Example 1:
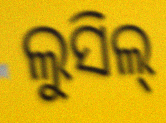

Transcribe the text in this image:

ଲୁସିଲ୍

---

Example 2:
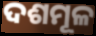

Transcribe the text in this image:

ଦଶମୂଳ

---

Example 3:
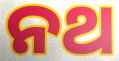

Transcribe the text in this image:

ନଥ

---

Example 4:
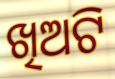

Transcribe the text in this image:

ଖିଅଟି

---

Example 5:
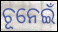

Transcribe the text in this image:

ଚୂନେଇଁ